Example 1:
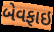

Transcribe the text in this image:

બેવફાઇ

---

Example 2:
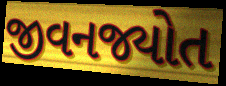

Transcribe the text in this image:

જીવનજ્યોત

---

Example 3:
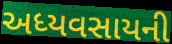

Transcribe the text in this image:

અધ્યવસાયની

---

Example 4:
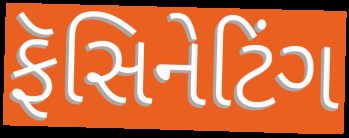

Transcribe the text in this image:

ફૅસિનેટિંગ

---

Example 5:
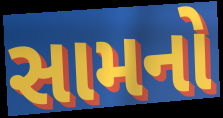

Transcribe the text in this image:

સામનો